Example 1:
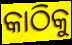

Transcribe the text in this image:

କାଠିକୁ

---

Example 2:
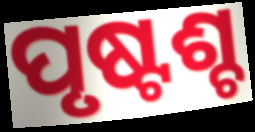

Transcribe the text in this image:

ପୃଷ୍ଟଶ୍ଚ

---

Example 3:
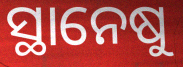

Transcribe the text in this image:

ସ୍ଥାନେଷୁ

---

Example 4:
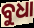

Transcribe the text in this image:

ବୁଧା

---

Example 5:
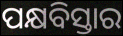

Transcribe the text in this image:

ପକ୍ଷବିସ୍ତାର